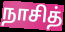
நாசித்